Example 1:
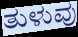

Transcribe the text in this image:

ತುಳುವು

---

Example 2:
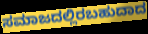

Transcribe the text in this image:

ಸಮಾಜದಲ್ಲಿರಬಹುದಾದ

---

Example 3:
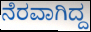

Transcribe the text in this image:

ನೆರವಾಗಿದ್ದ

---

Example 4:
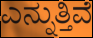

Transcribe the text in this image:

ಎನ್ನುತ್ತಿವೆ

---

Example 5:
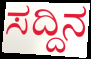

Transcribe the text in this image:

ಸದ್ದಿನ